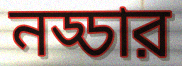
নড্ডার